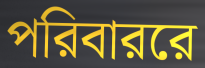
পরিবাররে